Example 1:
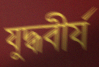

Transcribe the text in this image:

যুদ্ধবীর্য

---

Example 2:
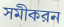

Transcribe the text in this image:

সমীকরন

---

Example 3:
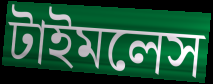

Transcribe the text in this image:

টাইমলেস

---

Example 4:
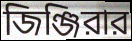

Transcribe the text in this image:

জিঞ্জিরার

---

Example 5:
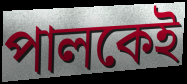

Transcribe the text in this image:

পালকেই